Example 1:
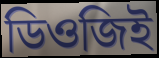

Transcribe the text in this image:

ডিওজিই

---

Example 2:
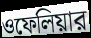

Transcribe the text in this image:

ওফেলিয়ার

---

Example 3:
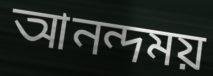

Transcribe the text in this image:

আনন্দময়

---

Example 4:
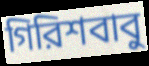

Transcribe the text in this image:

গিরিশবাবু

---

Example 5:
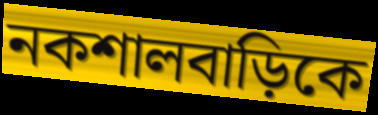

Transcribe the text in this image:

নকশালবাড়িকে